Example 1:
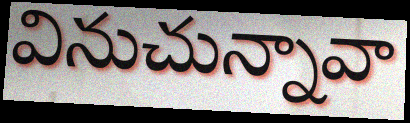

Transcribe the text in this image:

వినుచున్నావా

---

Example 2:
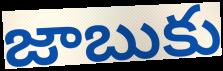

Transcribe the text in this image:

జాబుకు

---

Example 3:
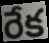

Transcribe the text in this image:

రేక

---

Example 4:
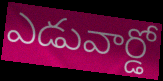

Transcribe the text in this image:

ఎడువార్డో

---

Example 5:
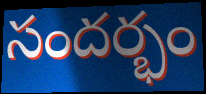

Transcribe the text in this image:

సందర్భం